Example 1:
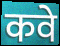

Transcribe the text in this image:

कवे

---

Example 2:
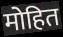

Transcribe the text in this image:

मोहित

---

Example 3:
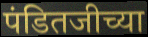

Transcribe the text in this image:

पंडितजीच्या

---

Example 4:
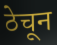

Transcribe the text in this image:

ठेचून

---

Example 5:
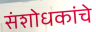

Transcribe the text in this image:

संशोधकांचे